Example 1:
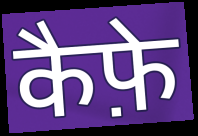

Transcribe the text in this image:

कैफ़े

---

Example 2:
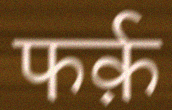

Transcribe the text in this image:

फर्क़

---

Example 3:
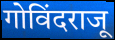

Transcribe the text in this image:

गोविंदराजू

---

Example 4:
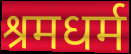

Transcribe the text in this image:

श्रमधर्म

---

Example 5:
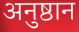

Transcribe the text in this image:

अनुष्ठान